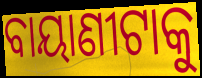
ବାୟାଣୀଟାକୁ